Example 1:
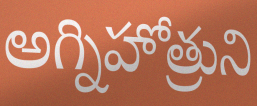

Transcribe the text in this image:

అగ్నిహోత్రుని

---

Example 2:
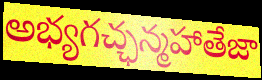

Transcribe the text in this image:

అభ్యగచ్ఛన్మహాతేజా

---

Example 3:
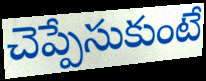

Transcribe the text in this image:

చెప్పేసుకుంటే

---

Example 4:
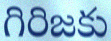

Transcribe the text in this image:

గిరిజకు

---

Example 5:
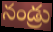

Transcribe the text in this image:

నండ్రు